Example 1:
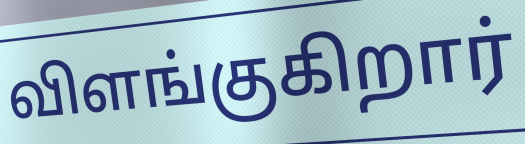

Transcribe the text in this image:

விளங்குகிறார்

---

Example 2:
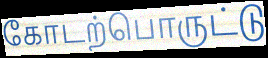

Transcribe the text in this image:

கோடற்பொருட்டு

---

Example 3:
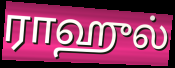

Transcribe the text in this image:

ராஹுல்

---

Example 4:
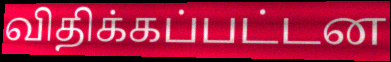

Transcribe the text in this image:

விதிக்கப்பட்டன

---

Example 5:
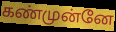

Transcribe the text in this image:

கண்முன்னே